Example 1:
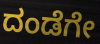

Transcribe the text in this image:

ದಂಡೆಗೇ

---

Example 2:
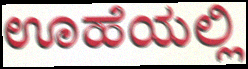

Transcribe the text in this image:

ಊಹೆಯಲ್ಲಿ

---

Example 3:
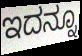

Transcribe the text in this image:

ಇದನ್ನೂ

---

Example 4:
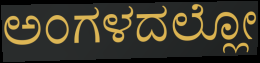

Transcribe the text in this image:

ಅಂಗಳದಲ್ಲೋ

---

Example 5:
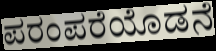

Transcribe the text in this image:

ಪರಂಪರೆಯೊಡನೆ